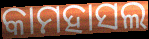
କାମହାସଲ